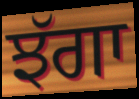
ਝੱਗਾ